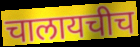
चालायचीच